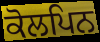
ਕੋਲਪਿਨ